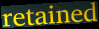
retained